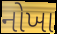
નોખા